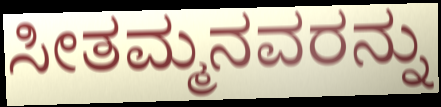
ಸೀತಮ್ಮನವರನ್ನು